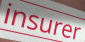
insurer